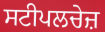
ਸਟੀਪਲਚੇਜ਼